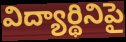
విద్యార్థినిపై